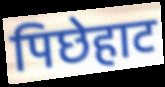
पिछेहाट